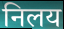
निलय